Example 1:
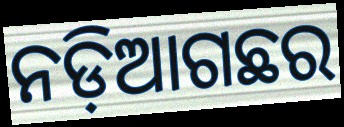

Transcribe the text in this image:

ନଡ଼ିଆଗଛର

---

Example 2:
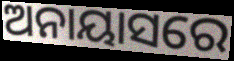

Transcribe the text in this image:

ଅନାୟାସରେ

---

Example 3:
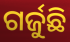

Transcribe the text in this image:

ଗର୍ଜୁଛି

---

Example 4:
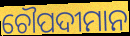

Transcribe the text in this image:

ଚୌପଦୀମାନ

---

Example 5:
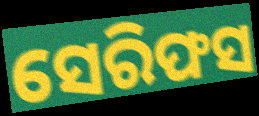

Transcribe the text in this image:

ସେରିଫସ